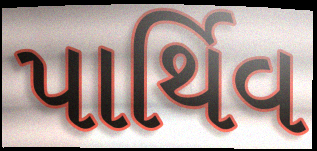
પાર્થિવ